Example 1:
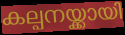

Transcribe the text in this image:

കല്പനയ്ക്കായി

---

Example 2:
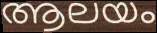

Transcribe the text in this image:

ആലയം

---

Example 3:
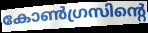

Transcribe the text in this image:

കോൺഗ്രസിന്റെ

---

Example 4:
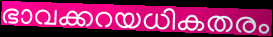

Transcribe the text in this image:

ഭാവക്കറയധികതരം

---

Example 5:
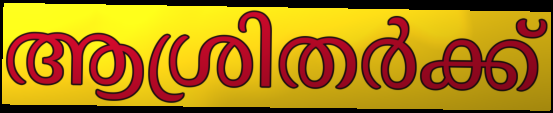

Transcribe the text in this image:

ആശ്രിതർക്ക്